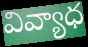
వివ్యాధ